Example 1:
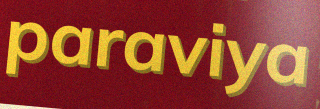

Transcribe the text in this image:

paraviya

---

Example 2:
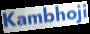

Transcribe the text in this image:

Kambhoji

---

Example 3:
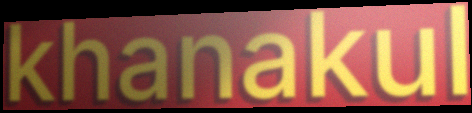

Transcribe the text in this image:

khanakul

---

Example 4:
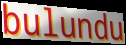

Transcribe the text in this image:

bulundu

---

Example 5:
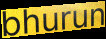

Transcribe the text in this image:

bhurun